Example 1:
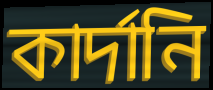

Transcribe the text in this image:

কার্দানি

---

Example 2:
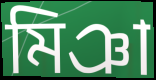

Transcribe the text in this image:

মিঞা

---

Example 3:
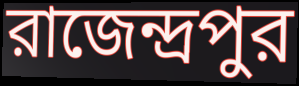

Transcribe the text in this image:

রাজেন্দ্রপুর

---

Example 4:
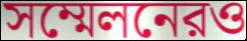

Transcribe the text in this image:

সম্মেলনেরও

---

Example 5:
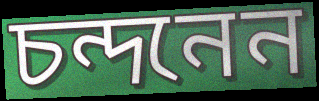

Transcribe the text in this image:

চন্দনেন